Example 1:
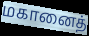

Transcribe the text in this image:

மகானைத்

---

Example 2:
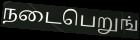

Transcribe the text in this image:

நடைபெறுங்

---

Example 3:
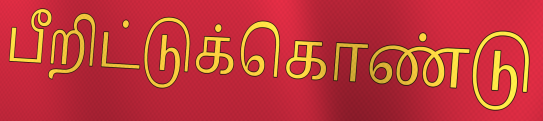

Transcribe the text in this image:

பீறிட்டுக்கொண்டு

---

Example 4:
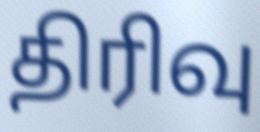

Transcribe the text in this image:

திரிவு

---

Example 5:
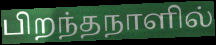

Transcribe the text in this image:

பிறந்தநாளில்